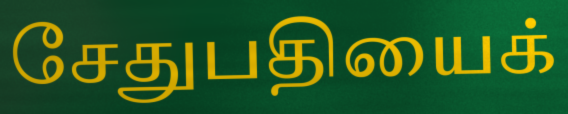
சேதுபதியைக்